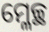
ମ୍ଳେଚ୍ଛ